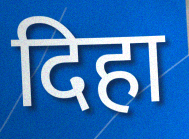
दिहा